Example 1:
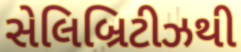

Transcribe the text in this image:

સેલિબ્રિટીઝથી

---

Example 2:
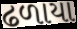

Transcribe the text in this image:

ઢળાયા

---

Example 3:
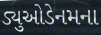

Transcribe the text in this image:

ડ્યુઓડેનમના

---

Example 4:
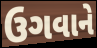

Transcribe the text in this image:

ઉગવાને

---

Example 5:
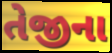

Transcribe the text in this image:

તેજીના